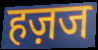
हज़ज